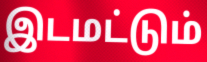
இடமட்டும்